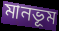
মানভূম